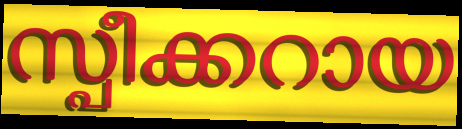
സ്പീക്കറായ